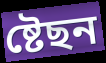
ষ্টেছন